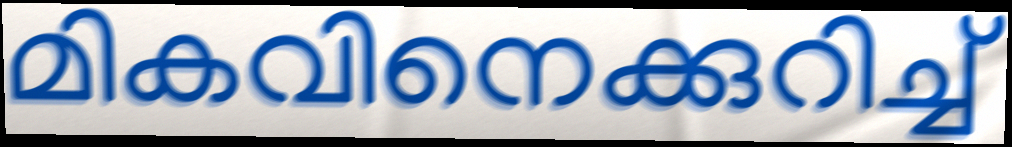
മികവിനെക്കുറിച്ച്